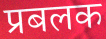
प्रबलक